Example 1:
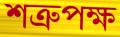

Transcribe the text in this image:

শত্রুপক্ষ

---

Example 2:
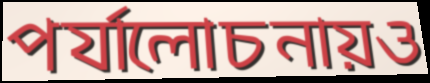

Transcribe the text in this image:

পর্যালোচনায়ও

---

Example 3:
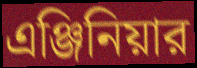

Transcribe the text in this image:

এঞ্জিনিয়ার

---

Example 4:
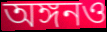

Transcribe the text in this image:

অঙ্গনও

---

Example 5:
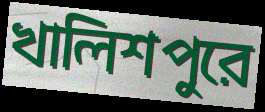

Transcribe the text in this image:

খালিশপুরে